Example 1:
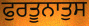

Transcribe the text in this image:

ਫੁਰਤੂਨਾਤੁਸ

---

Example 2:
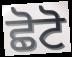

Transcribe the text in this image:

ਛੋਟੋ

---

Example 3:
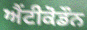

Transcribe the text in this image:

ਐਂਟੀਕੋਡੌਨ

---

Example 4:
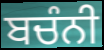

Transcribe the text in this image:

ਬਚੰਨੀ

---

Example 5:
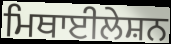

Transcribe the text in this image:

ਮਿਥਾਈਲੇਸ਼ਨ